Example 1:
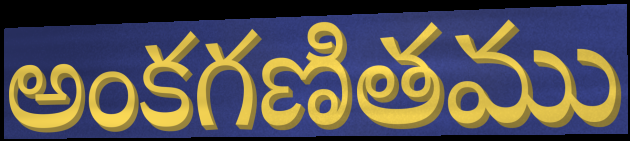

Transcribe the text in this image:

అంకగణితము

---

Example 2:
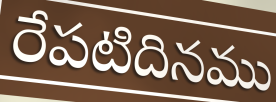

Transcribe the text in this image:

రేపటిదినము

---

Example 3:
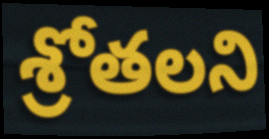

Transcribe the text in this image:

శ్రోతలని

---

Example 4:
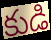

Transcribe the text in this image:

కుడి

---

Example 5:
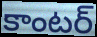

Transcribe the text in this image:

కాంటర్